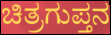
ಚಿತ್ರಗುಪ್ತನ